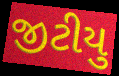
જીટીયુ